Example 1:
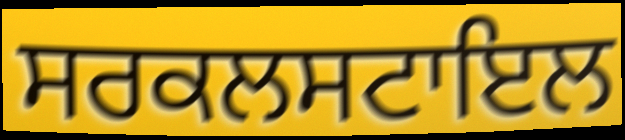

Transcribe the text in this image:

ਸਰਕਲਸਟਾਇਲ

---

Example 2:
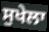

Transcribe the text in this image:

ਸੁਖੇਲਾ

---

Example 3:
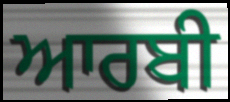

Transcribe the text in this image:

ਆਰਬੀ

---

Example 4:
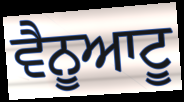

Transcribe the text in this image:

ਵੈਨੂਆਟੂ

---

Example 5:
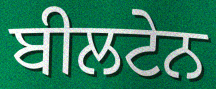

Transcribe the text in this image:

ਬੀਲਟੇਨ